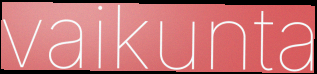
vaikunta